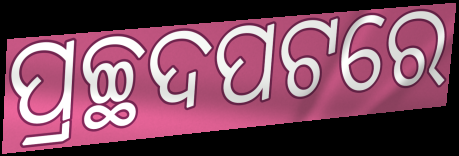
ପ୍ରଚ୍ଛଦପଟରେ